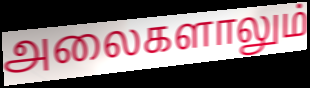
அலைகளாலும்